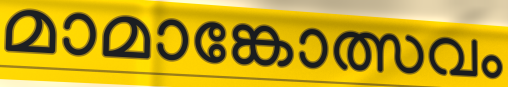
മാമാങ്കോത്സവം